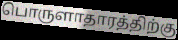
பொருளாதாரத்திற்கு